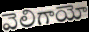
వెలిగాయో